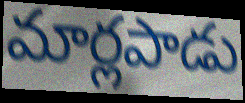
మార్లపాడు